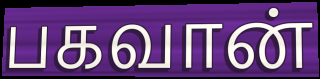
பகவான்